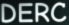
DERC